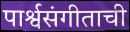
पार्श्वसंगीताची